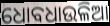
ଧୋବଧାଉଳିଆ